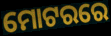
ମୋଟରରେ